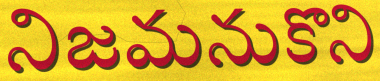
నిజమనుకొని